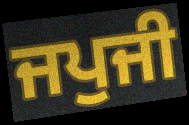
ਜਪੁਜੀ